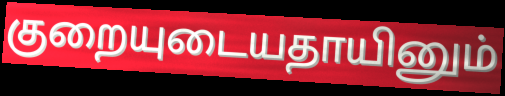
குறையுடையதாயினும்